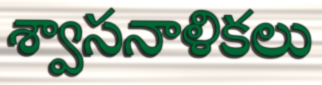
శ్వాసనాళికలు